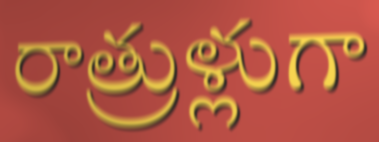
రాత్రుళ్లుగా